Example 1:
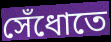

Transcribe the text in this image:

সেঁধোতে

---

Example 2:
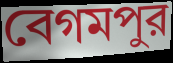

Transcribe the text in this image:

বেগমপুর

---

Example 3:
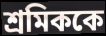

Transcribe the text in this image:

শ্রমিককে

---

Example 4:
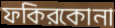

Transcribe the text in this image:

ফকিরকোনা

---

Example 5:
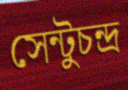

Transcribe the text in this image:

সেন্টুচন্দ্র